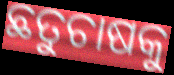
ଛତୁଚାଷକୁ